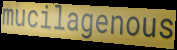
mucilagenous